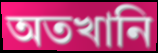
অতখানি